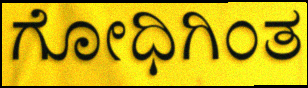
ಗೋಧಿಗಿಂತ